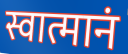
स्वात्मानं